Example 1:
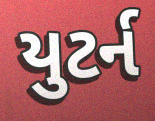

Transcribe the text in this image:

યુટર્ન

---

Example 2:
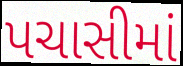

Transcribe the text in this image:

પચાસીમાં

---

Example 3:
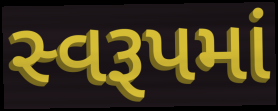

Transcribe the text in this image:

સ્વરૂપમાં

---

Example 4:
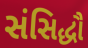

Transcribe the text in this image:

સંસિદ્ધૌ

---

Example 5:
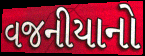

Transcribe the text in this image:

વજનીયાનો